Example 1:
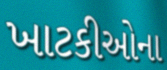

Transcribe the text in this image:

ખાટકીઓના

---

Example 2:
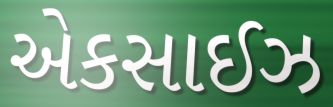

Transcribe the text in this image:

એકસાઈઝ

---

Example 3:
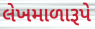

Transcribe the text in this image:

લેખમાળારૂપે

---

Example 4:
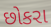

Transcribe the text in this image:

છોકરા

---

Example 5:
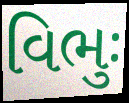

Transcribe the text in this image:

વિભુઃ